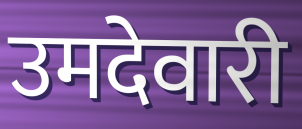
उमदेवारी